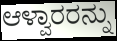
ಆಳ್ವಾರರನ್ನು